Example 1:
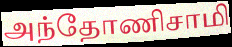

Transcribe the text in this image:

அந்தோணிசாமி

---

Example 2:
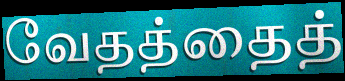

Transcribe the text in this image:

வேதத்தைத்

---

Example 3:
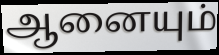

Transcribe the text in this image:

ஆனையும்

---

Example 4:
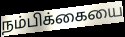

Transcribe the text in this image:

நம்பிக்கையை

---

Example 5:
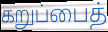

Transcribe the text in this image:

கறுப்பைத்